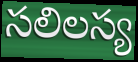
సలిలస్య